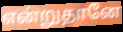
என்றுதானே